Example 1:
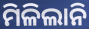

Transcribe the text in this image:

ମିଳିଲାନି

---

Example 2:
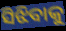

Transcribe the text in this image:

ସିଝିବାକୁ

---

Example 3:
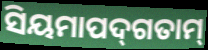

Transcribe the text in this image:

ସିୟମାପଦ୍‌ଗତାମ୍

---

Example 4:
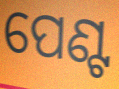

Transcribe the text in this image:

ପେଣ୍ଟ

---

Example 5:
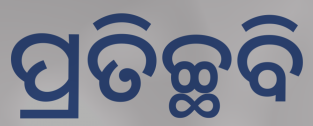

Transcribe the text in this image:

ପ୍ରତିଚ୍ଛବି